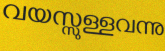
വയസ്സുള്ളവന്നു